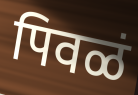
पिवळं